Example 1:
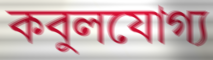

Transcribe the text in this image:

কবুলযোগ্য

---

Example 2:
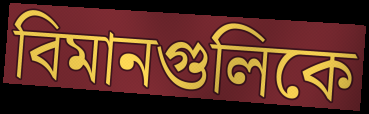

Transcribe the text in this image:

বিমানগুলিকে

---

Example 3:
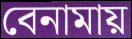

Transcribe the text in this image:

বেনামায়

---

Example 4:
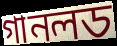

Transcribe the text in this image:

গানলড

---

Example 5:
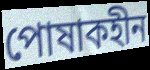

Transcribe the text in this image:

পোষাকহীন